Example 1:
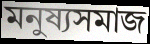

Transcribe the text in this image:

মনুষ্যসমাজ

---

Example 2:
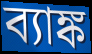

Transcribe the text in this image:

ব্যাঙ্ক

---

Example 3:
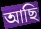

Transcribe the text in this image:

আছি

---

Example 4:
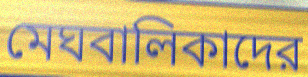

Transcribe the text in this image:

মেঘবালিকাদের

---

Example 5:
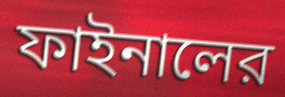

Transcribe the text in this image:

ফাইনালের